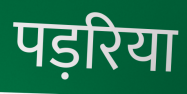
पड़रिया